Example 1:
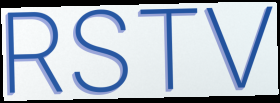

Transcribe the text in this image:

RSTV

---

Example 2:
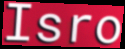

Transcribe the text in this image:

Isro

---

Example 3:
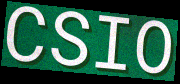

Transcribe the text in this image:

CSIO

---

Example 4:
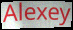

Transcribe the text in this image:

Alexey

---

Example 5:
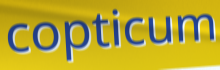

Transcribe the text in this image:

copticum